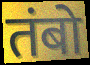
तंबो